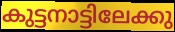
കുട്ടനാട്ടിലേക്കു